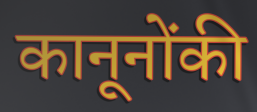
कानूनोंकी